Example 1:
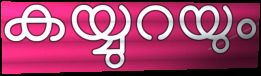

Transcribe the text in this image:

കയ്യുറയും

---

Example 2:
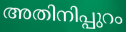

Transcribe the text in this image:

അതിനിപ്പുറം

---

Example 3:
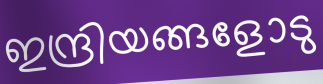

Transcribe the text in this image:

ഇന്ദ്രിയങ്ങളോടു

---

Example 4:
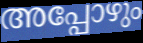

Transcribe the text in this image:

അപ്പോഴും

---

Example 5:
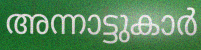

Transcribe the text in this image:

അന്നാട്ടുകാർ